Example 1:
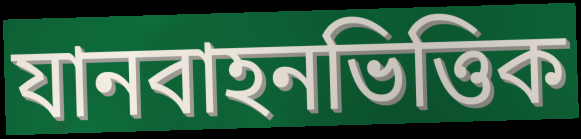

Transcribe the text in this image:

যানবাহনভিত্তিক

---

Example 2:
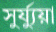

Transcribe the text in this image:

সুর্য্যুয়া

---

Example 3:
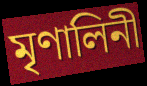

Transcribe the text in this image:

মৃণালিনী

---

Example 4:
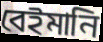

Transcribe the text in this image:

বেইমানি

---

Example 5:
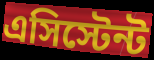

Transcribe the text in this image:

এসিস্টেন্ট